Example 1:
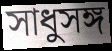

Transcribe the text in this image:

সাধুসঙ্গ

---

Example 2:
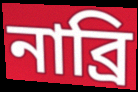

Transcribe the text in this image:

নাব্রি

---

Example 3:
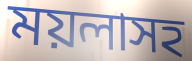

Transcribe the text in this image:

ময়লাসহ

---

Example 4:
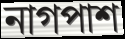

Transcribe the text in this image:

নাগপাশ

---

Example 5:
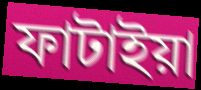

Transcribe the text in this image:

ফাটাইয়া